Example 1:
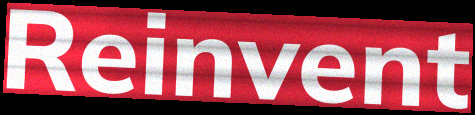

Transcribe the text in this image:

Reinvent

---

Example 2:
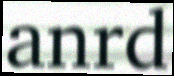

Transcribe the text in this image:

anrd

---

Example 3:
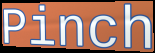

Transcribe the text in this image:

Pinch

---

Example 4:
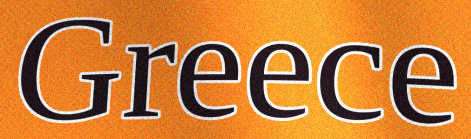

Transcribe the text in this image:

Greece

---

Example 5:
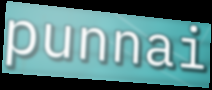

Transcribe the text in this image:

punnai